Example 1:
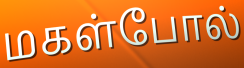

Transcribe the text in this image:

மகள்போல்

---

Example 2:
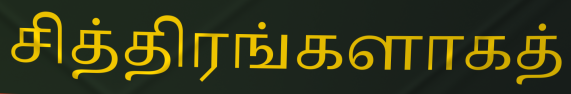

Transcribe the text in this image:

சித்திரங்களாகத்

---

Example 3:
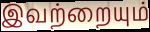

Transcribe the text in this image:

இவற்றையும்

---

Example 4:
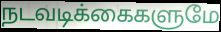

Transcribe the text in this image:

நடவடிக்கைகளுமே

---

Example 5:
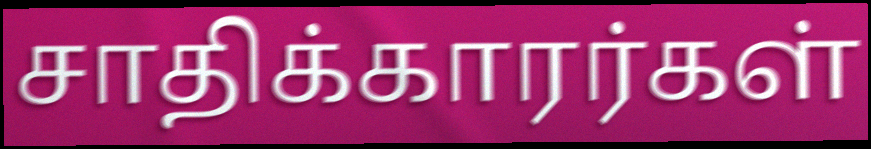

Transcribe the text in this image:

சாதிக்காரர்கள்